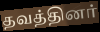
தவத்தினர்